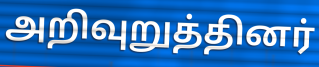
அறிவுறுத்தினர்